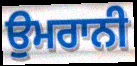
ਉਮਰਾਨੀ